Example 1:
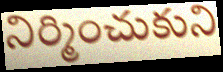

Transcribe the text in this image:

నిర్మించుకుని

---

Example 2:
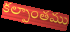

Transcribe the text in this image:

కల్పాంతము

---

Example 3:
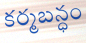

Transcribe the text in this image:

కర్మబన్ధం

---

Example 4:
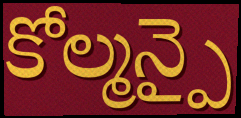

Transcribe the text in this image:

కోల్మన్పై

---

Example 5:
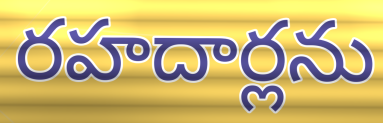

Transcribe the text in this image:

రహదార్లను